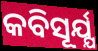
କବିସୂର୍ଯ୍ଯ